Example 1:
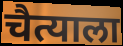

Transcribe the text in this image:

चैत्याला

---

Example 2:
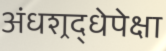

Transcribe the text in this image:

अंधश्रद्धेपेक्षा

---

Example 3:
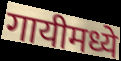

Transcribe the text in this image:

गायीमध्ये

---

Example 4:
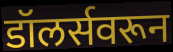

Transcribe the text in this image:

डॉलर्सवरून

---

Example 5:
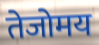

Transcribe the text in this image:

तेजोमय